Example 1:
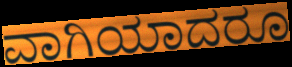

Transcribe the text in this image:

ವಾಗಿಯಾದರೂ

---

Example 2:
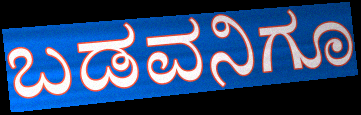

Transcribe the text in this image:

ಬಡವನಿಗೂ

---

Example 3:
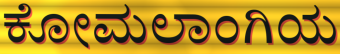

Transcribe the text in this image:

ಕೋಮಲಾಂಗಿಯ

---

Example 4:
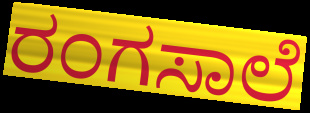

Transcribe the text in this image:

ರಂಗಸಾಲೆ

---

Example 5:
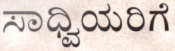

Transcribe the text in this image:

ಸಾಧ್ವಿಯರಿಗೆ